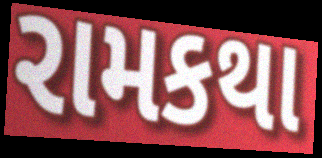
રામકથા